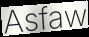
Asfaw